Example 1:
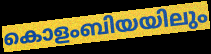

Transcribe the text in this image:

കൊളംബിയയിലും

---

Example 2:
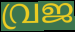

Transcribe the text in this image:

വ്രജ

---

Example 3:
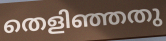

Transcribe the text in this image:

തെളിഞ്ഞതു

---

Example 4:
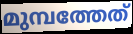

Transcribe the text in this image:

മുമ്പത്തേത്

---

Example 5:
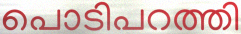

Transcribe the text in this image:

പൊടിപറത്തി